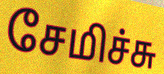
சேமிச்சு